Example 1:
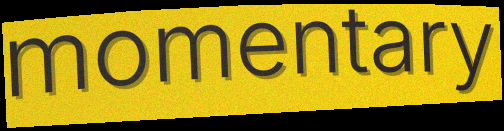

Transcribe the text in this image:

momentary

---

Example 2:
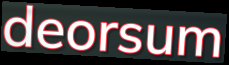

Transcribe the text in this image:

deorsum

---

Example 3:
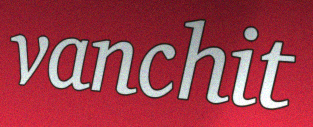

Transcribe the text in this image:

vanchit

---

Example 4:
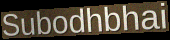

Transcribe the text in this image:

Subodhbhai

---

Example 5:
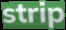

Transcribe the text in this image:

strip